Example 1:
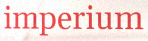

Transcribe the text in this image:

imperium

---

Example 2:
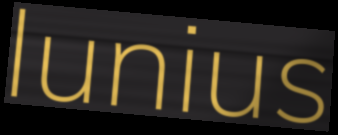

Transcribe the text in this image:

Iunius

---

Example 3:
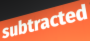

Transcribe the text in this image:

subtracted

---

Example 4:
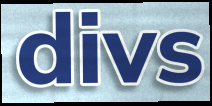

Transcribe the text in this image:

divs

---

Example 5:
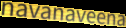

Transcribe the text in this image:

navanaveena